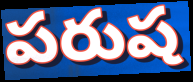
పరుష